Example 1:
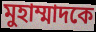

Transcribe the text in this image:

মুহাম্মাদকে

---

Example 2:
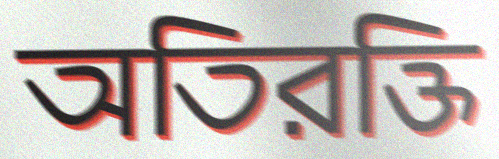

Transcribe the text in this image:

অতিরক্তি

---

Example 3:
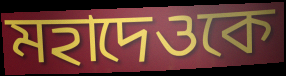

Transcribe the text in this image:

মহাদেওকে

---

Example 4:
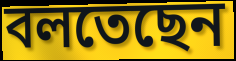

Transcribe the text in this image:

বলতেছেন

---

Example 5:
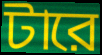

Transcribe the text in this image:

টারে